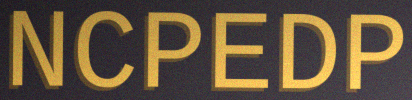
NCPEDP